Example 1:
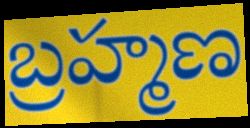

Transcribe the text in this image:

బ్రహ్మణ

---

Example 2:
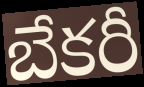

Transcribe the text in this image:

బేకరీ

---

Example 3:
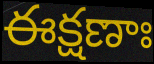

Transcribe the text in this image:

ఈక్షణాః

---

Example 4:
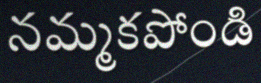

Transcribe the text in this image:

నమ్మకపోండి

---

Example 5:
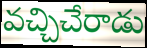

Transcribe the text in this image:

వచ్చిచేరాడు